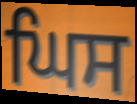
ਘਿਸ